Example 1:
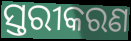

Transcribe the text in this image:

ସ୍ତରୀକରଣ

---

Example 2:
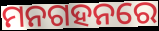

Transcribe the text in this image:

ମନଗହନରେ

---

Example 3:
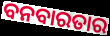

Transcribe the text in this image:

ବନବାରତାର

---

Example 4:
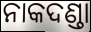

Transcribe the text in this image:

ନାକଦଣ୍ଡା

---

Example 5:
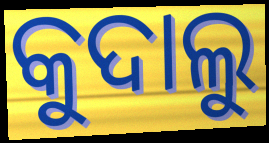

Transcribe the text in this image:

କୁଦାଲୁ